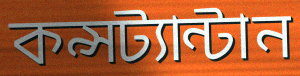
কন্সট্যান্টান